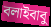
বলাইবাবু